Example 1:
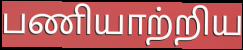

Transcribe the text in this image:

பணியாற்றிய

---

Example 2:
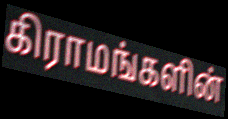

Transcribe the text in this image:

கிராமங்களின்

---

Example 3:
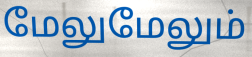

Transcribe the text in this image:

மேலுமேலும்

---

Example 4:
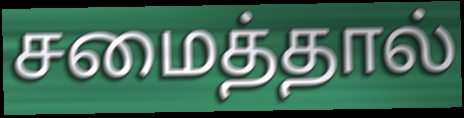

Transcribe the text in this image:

சமைத்தால்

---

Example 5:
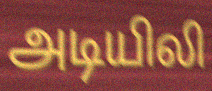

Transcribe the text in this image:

அடியிலி